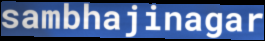
sambhajinagar